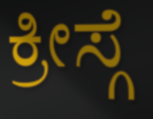
ಕ್ರೀಸ್ಗೆ